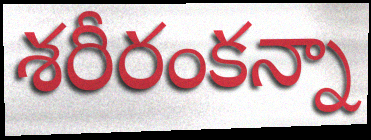
శరీరంకన్నా